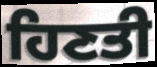
ਹਿਣਤੀ